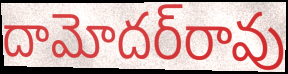
దామోదర్‌రావు